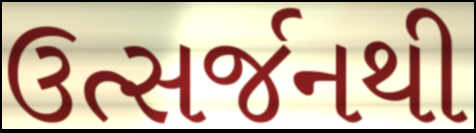
ઉત્સર્જનથી